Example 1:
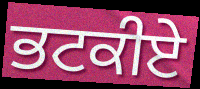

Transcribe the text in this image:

ਭਟਕੀਏ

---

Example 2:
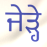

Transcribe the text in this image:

ਜੇੜ੍ਹੇ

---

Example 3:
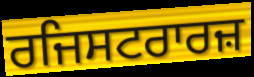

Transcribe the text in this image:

ਰਜਿਸਟਰਾਰਜ਼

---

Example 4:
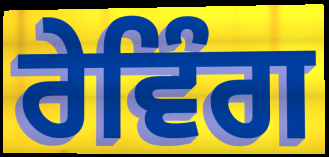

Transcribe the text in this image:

ਰੇਵਿੰਗ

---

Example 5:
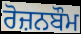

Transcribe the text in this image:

ਰੋਜ਼ਨਬੌਮ